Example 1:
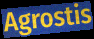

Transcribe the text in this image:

Agrostis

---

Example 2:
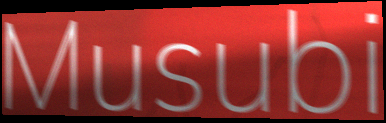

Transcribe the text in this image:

Musubi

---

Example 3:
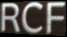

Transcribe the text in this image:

RCF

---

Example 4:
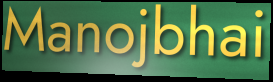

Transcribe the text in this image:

Manojbhai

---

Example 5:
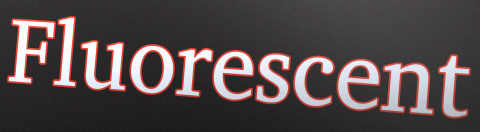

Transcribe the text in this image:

Fluorescent